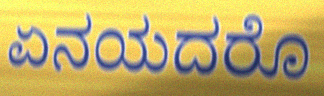
ಏನಯದರೊ